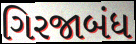
ગિરજાબંધ